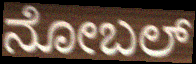
ನೋಬಲ್